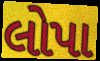
લોપા